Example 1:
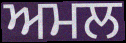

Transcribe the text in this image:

ਅਮਲ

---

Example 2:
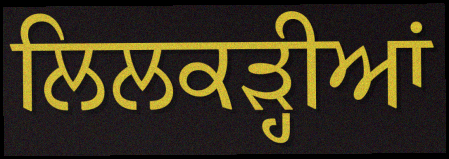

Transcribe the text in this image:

ਲਿਲਕੜ੍ਹੀਆਂ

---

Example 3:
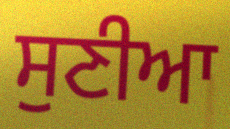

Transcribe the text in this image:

ਸੁਣੀਆ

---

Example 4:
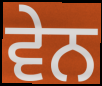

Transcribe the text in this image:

ਵੇਨ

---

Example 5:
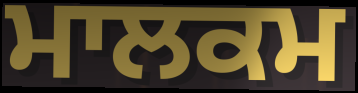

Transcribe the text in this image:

ਮਾਲਕਮ